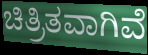
ಚಿತ್ರಿತವಾಗಿವೆ